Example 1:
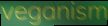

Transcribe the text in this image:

veganism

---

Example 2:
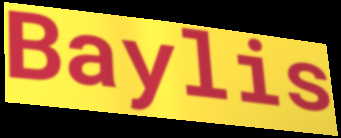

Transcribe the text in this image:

Baylis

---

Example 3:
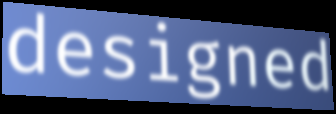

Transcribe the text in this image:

designed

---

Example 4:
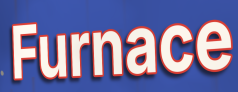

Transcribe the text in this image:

Furnace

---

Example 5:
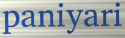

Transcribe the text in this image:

paniyari